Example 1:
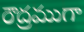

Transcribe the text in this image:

రౌద్రముగా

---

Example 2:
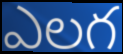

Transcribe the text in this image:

ఎలగ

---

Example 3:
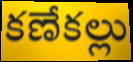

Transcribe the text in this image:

కణేకల్లు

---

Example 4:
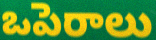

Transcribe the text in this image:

ఒపెరాలు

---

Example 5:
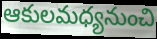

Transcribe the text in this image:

ఆకులమధ్యనుంచి